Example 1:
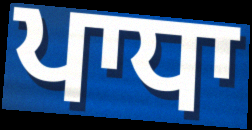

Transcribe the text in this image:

ਪਾਧਾ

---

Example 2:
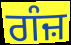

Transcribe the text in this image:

ਗੰਜ਼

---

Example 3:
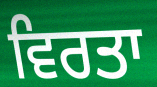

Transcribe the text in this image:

ਵਿਰਤਾ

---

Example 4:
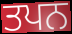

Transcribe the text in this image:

ਤਪਨ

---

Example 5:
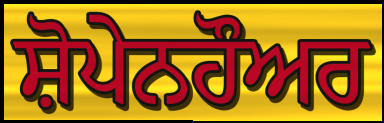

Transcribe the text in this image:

ਸ਼ੋਪੇਨਹੌਅਰ